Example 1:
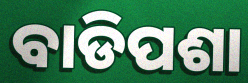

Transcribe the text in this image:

ବାଡିପଶା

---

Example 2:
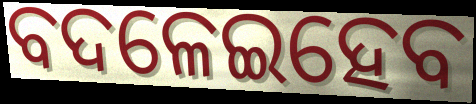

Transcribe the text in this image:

ବଦଳେଇହେବ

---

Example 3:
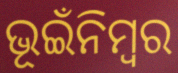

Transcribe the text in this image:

ଭୂଇଁନିମ୍ବର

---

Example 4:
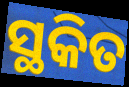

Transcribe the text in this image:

ସ୍ଥକିତ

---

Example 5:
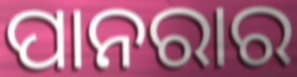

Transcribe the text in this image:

ପାନରାର